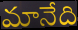
మానేది